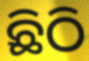
ଛିଠି